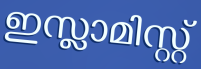
ഇസ്ലാമിസ്റ്റ്